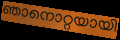
ഞാനൊറ്റയായി